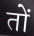
तों